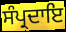
ਸੰਪ੍ਰਦਾਇ